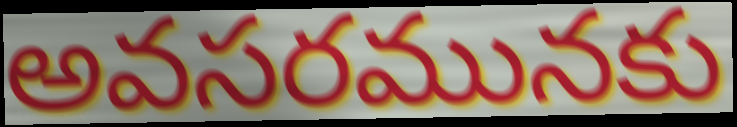
అవసరమునకు